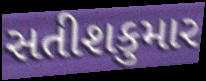
સતીશકુમાર